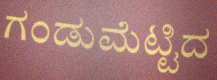
ಗಂಡುಮೆಟ್ಟಿದ